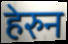
हेरुन